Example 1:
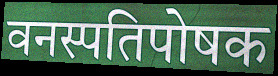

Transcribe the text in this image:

वनस्पतिपोषक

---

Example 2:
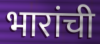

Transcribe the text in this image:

भारांची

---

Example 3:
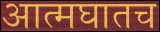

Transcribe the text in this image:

आत्मघातच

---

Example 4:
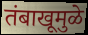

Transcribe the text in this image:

तंबाखूमुळे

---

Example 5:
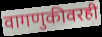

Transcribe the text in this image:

वागणुकीवरही